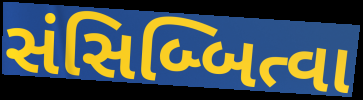
સંસિબ્બિત્વા